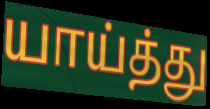
யாய்த்து